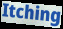
Itching